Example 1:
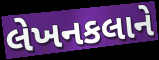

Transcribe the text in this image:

લેખનકલાને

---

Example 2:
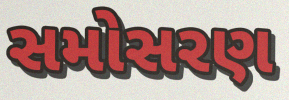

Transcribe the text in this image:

સમોસરણ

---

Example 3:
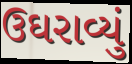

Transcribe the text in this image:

ઉઘરાવ્યું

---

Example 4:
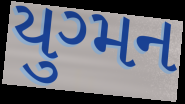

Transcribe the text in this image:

યુગ્મન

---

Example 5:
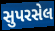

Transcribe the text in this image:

સુપરસેલ